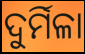
ଦୁର୍ମିଳା